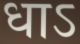
धाऽ